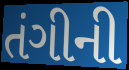
તંગીની